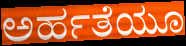
ಅರ್ಹತೆಯೂ